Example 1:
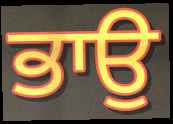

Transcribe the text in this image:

ਭਾਉ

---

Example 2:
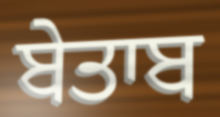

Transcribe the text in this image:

ਬੇਤਾਬ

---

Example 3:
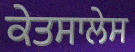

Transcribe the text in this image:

ਕੇਤਸਾਲੇਸ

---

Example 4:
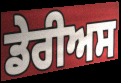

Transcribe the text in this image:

ਡੇਰੀਅਸ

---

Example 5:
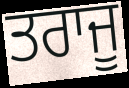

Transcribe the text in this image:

ਤਰਾਜੂ